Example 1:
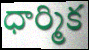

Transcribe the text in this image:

ధార్మిక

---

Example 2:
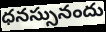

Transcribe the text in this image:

ధనస్సునందు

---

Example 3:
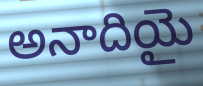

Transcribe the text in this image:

అనాదియై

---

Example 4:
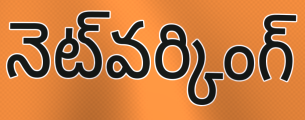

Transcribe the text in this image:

నెట్‌వర్కింగ్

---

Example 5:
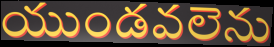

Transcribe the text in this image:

యుండవలెను